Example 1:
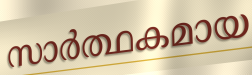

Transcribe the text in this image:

സാർത്ഥകമായ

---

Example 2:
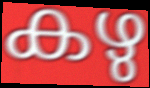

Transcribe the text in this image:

കഴു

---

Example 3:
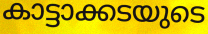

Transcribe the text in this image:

കാട്ടാക്കടയുടെ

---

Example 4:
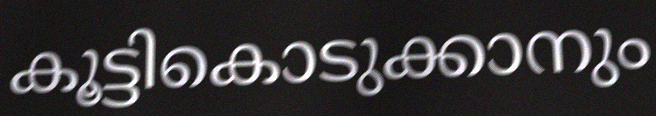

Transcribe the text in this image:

കൂട്ടികൊടുക്കാനും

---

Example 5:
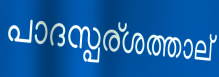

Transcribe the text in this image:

പാദസ്പര്ശത്താല്